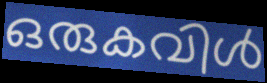
ഒരുകവിൾ